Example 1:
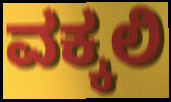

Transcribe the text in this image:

ವಕ್ಕಲಿ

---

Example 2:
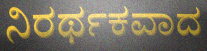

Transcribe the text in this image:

ನಿರರ್ಥಕವಾದ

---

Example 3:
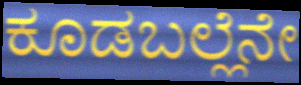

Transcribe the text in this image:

ಕೂಡಬಲ್ಲೆನೇ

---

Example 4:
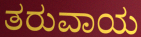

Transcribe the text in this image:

ತರುವಾಯ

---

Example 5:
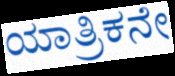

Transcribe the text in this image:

ಯಾತ್ರಿಕನೇ